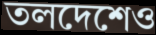
তলদেশেও